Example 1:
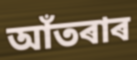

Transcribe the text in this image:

আঁতৰাৰ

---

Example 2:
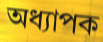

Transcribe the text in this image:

অধ্যাপক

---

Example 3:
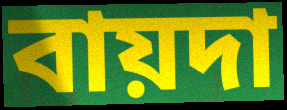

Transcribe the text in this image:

বায়দা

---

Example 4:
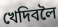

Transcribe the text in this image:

খেদিবলৈ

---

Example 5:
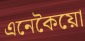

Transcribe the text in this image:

এনেকৈয়ো